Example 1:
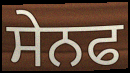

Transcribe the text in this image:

ਸੇਨਫ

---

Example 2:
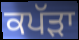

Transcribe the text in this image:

ਕਪੱੜਾ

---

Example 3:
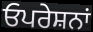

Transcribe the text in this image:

ਓਪਰੇਸ਼ਨਾਂ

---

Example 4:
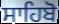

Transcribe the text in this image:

ਸਾਹਿਬੋ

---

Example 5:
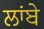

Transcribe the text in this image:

ਲਾਂਬੇ